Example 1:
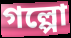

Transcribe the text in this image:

গল্পো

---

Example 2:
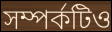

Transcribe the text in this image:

সম্পর্কটিও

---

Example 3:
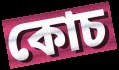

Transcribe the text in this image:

কোচ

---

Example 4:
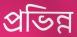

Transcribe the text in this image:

প্রভিন্ন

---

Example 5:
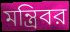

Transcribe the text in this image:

মন্ত্রিবর